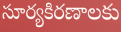
సూర్యకిరణాలకు